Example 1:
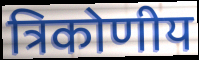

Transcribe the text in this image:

त्रिकोणीय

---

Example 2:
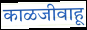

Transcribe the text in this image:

काळजीवाहू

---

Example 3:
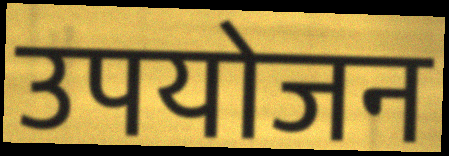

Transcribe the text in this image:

उपयोजन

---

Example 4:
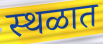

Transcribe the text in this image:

स्थळात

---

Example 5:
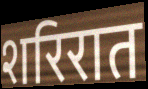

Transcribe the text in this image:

शरिरात